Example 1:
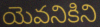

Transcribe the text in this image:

యెవనికిని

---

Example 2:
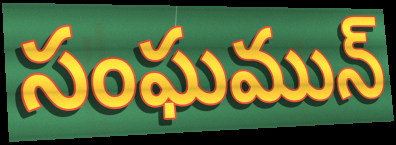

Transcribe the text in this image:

సంఘమున్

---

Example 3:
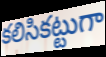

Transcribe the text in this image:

కలిసికట్టుగా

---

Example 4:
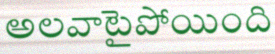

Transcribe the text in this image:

అలవాటైపోయింది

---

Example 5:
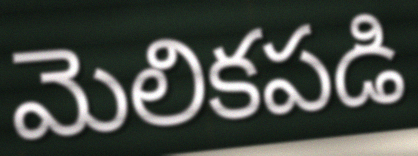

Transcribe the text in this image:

మెలికపడి